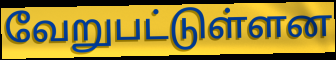
வேறுபட்டுள்ளன